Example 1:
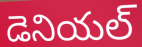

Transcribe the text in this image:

డెనియల్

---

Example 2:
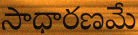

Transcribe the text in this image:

సాధారణమే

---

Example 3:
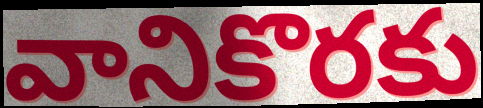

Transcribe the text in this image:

వానికొరకు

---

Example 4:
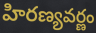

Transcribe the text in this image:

హిరణ్యవర్ణం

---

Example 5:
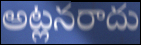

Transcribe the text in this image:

అట్లనరాదు